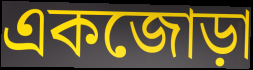
একজোড়া